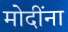
मोदींना